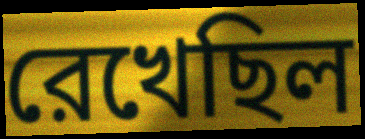
রেখেছিল